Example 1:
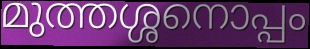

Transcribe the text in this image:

മുത്തശ്ശനൊപ്പം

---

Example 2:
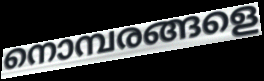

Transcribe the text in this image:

നൊമ്പരങ്ങളെ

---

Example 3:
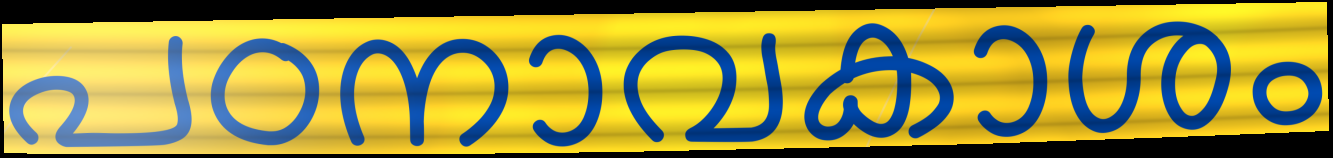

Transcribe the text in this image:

പഠനാവകാശം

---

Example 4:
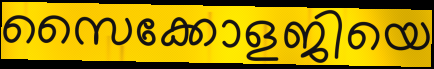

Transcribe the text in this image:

സൈക്കോളജിയെ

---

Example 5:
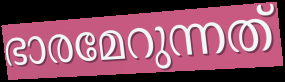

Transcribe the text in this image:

ഭാരമേറുന്നത്